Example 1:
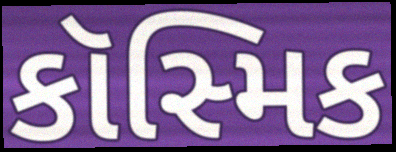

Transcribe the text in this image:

કૉસ્મિક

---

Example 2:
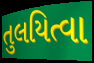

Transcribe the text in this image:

તુલયિત્વા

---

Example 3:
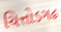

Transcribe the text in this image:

ચિત્તોડગઢ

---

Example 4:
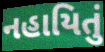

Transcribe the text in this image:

નહાયિતું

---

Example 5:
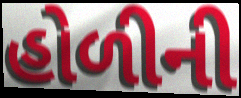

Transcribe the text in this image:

હોળીની